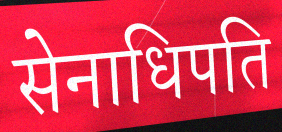
सेनाधिपति